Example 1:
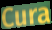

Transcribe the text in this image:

Cura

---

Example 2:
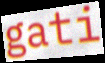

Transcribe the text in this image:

gati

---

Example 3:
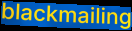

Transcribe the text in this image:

blackmailing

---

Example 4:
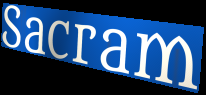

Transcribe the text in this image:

Sacram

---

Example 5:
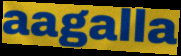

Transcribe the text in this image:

aagalla